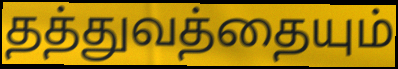
தத்துவத்தையும்